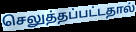
செலுத்தப்பட்டதால்